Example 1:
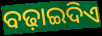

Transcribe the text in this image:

ବଢ଼ାଇଦିଏ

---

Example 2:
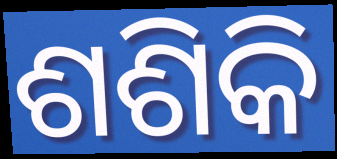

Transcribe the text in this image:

ଶଶିକି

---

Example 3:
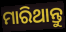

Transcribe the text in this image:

ମାରିଥାନ୍ତୁ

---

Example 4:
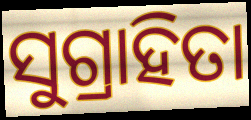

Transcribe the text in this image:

ସୁଗ୍ରାହିତା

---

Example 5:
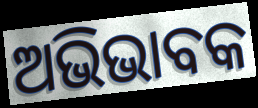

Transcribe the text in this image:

ଅଭିଭାବକ